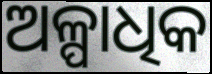
ଅଳ୍ପାଧିକ